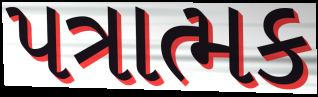
પત્રાત્મક